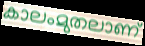
കാലംമുതലാണ്